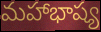
మహాభాష్య